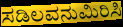
ಸಡಿಲವನುಮಿರಿಸಿ